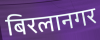
बिरलानगर